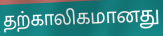
தற்காலிகமானது